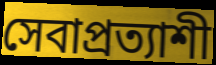
সেবাপ্রত্যাশী